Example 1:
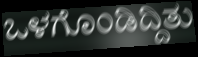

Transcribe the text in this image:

ಒಳಗೊಂಡಿದ್ದಿತು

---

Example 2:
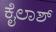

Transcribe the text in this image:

ಕೈಲಾಶ್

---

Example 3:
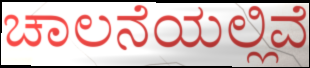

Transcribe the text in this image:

ಚಾಲನೆಯಲ್ಲಿವೆ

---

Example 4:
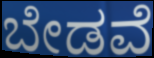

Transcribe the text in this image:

ಬೇಡವೆ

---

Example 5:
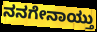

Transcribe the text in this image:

ನನಗೇನಾಯ್ತು